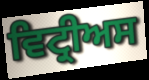
ਵਿਟ੍ਰੀਅਸ